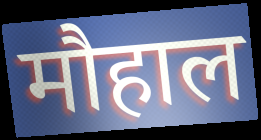
मौहाल